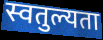
स्वतुल्यता